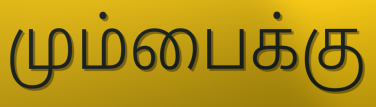
மும்பைக்கு